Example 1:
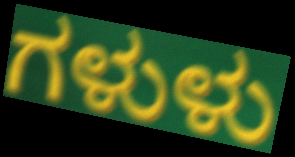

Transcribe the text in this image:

ಗಳುಳು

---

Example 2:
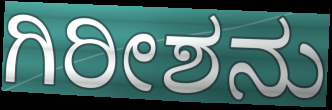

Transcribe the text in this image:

ಗಿರೀಶನು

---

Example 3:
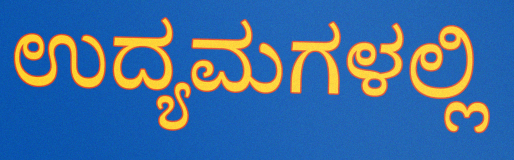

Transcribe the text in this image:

ಉದ್ಯಮಗಳಲ್ಲಿ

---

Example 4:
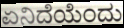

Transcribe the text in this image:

ಏನಿದೆಯೆಂದು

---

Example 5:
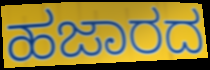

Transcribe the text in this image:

ಹಜಾರದ